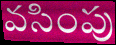
వసింపు